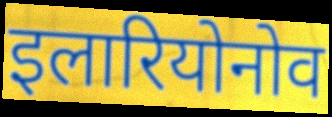
इलारियोनोव